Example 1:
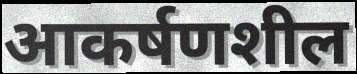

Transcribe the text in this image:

आकर्षणशील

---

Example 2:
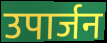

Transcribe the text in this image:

उपार्जन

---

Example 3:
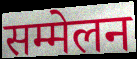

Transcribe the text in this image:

सम्मेलन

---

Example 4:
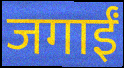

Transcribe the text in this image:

जगाईं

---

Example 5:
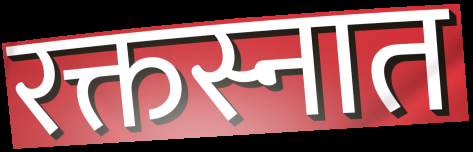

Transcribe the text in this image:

रक्तस्नात